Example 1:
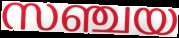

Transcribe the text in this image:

സഞ്ചയ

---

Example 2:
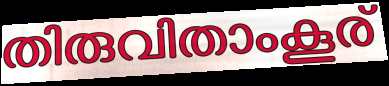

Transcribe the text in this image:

തിരുവിതാംകൂര്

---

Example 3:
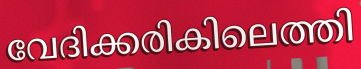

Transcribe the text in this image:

വേദിക്കരികിലെത്തി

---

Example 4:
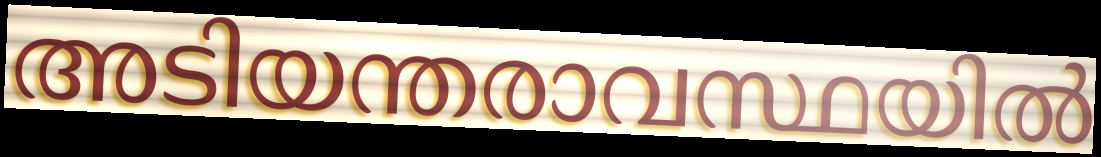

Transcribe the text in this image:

അടിയന്തരാവസ്ഥയിൽ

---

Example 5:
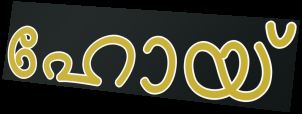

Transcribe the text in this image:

ഹോയ്